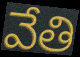
వేతి